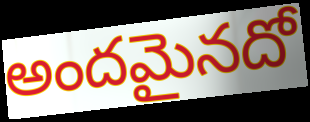
అందమైనదో